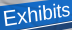
Exhibits